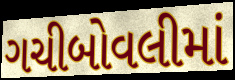
ગચીબોવલીમાં